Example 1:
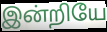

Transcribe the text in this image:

இன்றியே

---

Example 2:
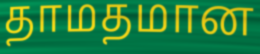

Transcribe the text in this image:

தாமதமான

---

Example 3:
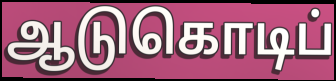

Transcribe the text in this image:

ஆடுகொடிப்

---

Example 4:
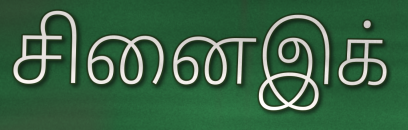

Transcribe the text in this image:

சினைஇக்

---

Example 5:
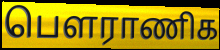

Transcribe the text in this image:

பௌராணிக